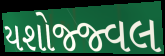
યશોજ્જ્વલ